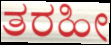
ತರಹೀ